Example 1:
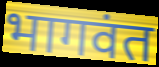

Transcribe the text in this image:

भागवंत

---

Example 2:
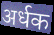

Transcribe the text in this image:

अर्धक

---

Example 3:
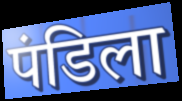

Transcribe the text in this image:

पंडिला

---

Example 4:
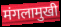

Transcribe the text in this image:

मंगलामुखी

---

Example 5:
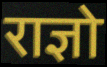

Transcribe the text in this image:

राज्ञो